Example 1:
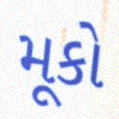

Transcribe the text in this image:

મૂકો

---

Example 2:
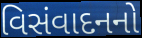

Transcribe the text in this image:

વિસંવાદનનો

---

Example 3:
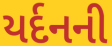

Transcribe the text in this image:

યર્દનની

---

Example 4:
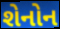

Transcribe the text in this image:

શેનોન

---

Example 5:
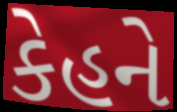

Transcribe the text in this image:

કેહને